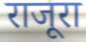
राजूरा